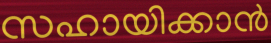
സഹായിക്കാൻ